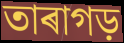
তাৰাগড়